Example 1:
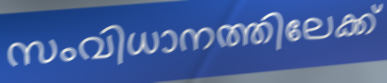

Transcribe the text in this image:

സംവിധാനത്തിലേക്ക്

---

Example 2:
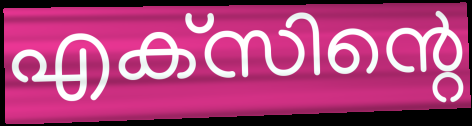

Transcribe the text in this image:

എക്‌സിന്റെ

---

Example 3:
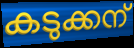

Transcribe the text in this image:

കടുക്കന്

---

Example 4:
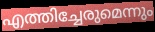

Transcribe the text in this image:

എത്തിച്ചേരുമെന്നും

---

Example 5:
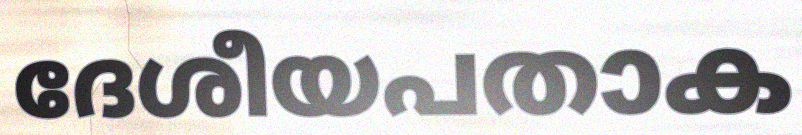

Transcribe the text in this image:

ദേശീയപതാക